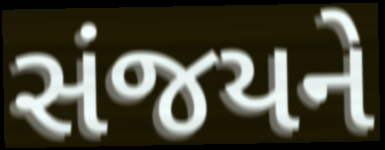
સંજયને